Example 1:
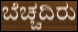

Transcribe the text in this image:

ಬೆಚ್ಚದಿರು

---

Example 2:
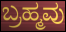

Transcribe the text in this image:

ಬ್ರಹ್ಮವು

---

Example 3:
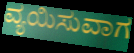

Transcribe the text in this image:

ವ್ಯಯಿಸುವಾಗ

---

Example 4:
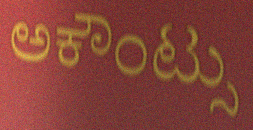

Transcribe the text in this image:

ಅಕೌಂಟ್ಸು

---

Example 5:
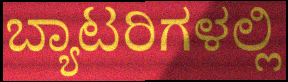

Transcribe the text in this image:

ಬ್ಯಾಟರಿಗಳಲ್ಲಿ